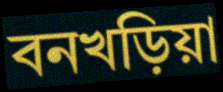
বনখড়িয়া